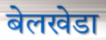
बेलखेडा